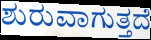
ಶುರುವಾಗುತ್ತದೆ